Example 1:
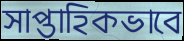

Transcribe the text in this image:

সাপ্তাহিকভাবে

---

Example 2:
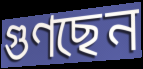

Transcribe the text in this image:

গুণছেন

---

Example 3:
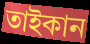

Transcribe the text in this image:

তাইকান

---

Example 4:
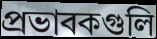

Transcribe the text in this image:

প্রভাবকগুলি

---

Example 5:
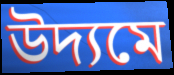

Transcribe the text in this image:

উদ্যমে